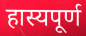
हास्यपूर्ण